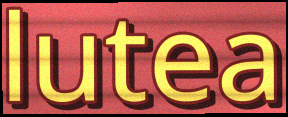
lutea